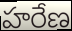
హరేణ